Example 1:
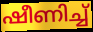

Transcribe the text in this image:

ഷീണിച്ച്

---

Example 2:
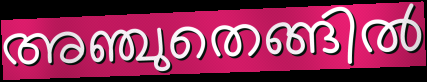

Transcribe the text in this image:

അഞ്ചുതെങ്ങിൽ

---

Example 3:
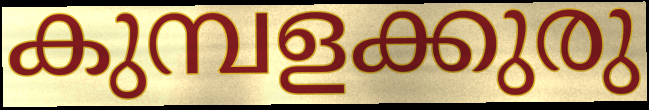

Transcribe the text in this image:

കുമ്പളക്കുരു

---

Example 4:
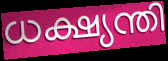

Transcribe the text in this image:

ധക്ഷ്യന്തി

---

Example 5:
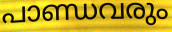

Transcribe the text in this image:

പാണ്ഡവരും